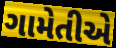
ગામેતીએ